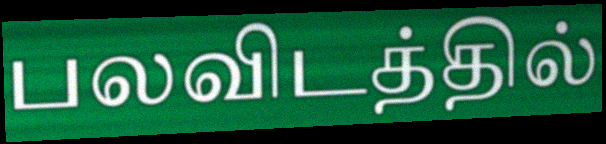
பலவிடத்தில்